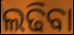
ଲଢିବା